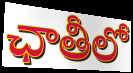
ఛాతీలో